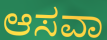
ಆಸವಾ